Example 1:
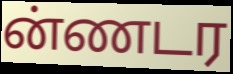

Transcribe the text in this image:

ன்ணடர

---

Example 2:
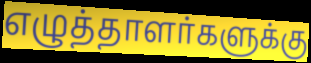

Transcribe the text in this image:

எழுத்தாளர்களுக்கு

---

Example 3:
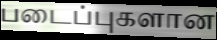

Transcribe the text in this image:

படைப்புகளான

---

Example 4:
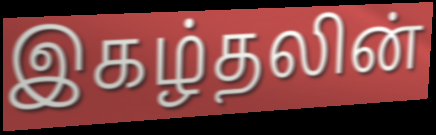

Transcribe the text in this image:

இகழ்தலின்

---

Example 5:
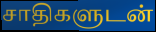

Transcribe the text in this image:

சாதிகளுடன்